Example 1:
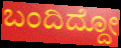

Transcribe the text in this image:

ಬಂದಿದ್ದೋ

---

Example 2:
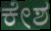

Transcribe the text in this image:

ಕೇಶ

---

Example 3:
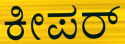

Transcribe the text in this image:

ಕೀಪರ್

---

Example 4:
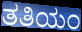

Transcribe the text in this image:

ತತಿಯಂ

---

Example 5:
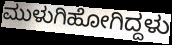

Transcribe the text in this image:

ಮುಳುಗಿಹೋಗಿದ್ದಳು